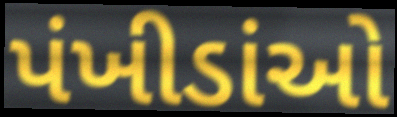
પંખીડાંઓ